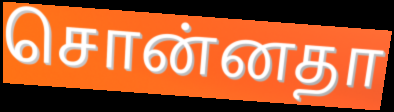
சொன்னதா